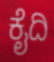
ಕೈದಿ